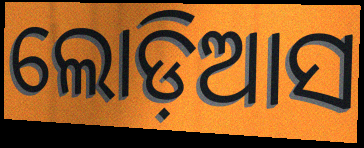
ଲୋଡ଼ିଆସ